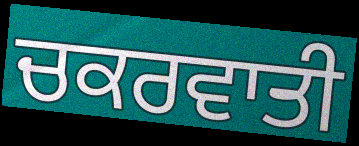
ਚਕਰਵਾਤੀ